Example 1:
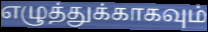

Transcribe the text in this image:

எழுத்துக்காகவும்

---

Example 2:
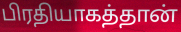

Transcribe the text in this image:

பிரதியாகத்தான்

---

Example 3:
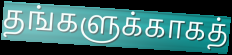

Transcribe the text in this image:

தங்களுக்காகத்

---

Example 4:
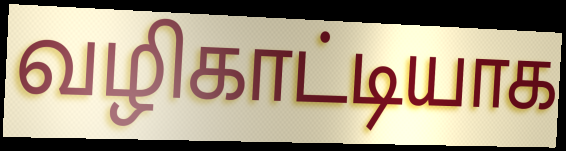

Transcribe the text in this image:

வழிகாட்டியாக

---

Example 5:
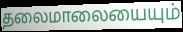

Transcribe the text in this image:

தலைமாலையையும்